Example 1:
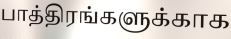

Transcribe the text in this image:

பாத்திரங்களுக்காக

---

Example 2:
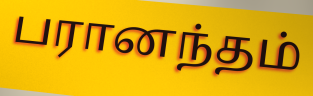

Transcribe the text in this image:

பரானந்தம்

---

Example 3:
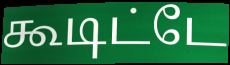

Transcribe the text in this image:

கூடிட்டே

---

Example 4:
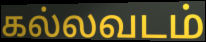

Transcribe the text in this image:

கல்லவடம்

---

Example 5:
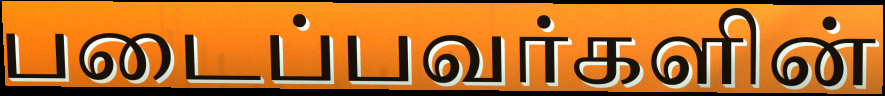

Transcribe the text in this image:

படைப்பவர்களின்